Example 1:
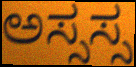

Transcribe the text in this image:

ಅಸ್ಸಸ್ಸ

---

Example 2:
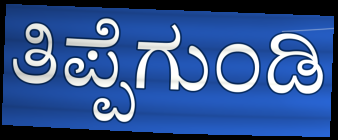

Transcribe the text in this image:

ತಿಪ್ಪೆಗುಂಡಿ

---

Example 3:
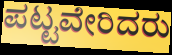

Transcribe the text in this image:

ಪಟ್ಟವೇರಿದರು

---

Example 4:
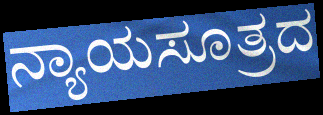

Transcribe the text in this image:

ನ್ಯಾಯಸೂತ್ರದ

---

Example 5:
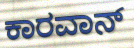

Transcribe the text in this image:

ಕಾರವಾನ್